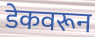
डेकवरून